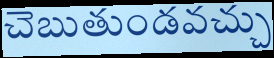
చెబుతుండవచ్చు